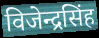
विजेन्द्रसिंह